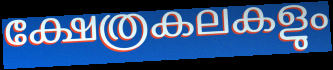
ക്ഷേത്രകലകളും